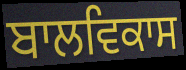
ਬਾਲਵਿਕਾਸ